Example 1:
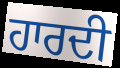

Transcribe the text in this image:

ਹਾਰਦੀ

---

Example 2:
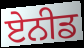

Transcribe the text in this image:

ਏਨੀਡ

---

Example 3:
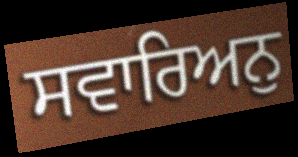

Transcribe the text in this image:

ਸਵਾਰਿਅਨੁ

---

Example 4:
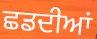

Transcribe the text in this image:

ਛਡਦੀਆਂ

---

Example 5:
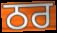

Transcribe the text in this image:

ਠਰ